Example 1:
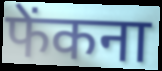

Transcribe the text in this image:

फेंकना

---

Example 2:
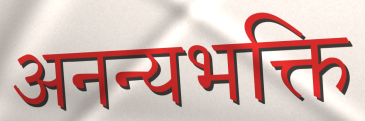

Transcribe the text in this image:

अनन्यभक्ति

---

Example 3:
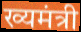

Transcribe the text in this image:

ख्यमंत्री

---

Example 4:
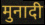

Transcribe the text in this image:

मुनादी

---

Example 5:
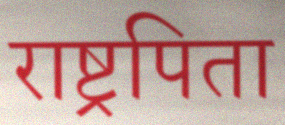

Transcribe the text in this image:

राष्ट्रपिता